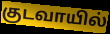
குடவாயில்